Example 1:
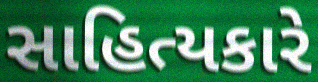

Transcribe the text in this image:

સાહિત્યકારે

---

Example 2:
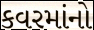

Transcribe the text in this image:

કવરમાંનો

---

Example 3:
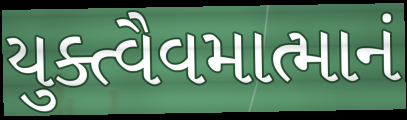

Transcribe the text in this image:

યુક્ત્વૈવમાત્માનં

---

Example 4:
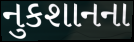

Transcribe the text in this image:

નુકશાનના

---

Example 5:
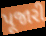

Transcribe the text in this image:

પૂજારી